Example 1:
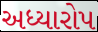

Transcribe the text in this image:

અધ્યારોપ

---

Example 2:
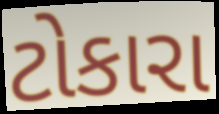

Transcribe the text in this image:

ટોકારા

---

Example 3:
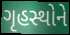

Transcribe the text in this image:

ગૃહસ્થોને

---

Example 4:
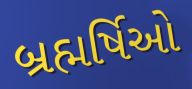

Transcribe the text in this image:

બ્રહ્મર્ષિઓ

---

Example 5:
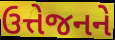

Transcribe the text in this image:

ઉત્તેજનને